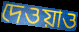
দেওয়াও